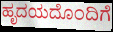
ಹೃದಯದೊಂದಿಗೆ